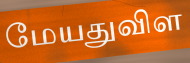
மேயதுவிள